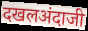
दखलअंदाजी